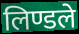
लिण्डले